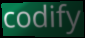
codify